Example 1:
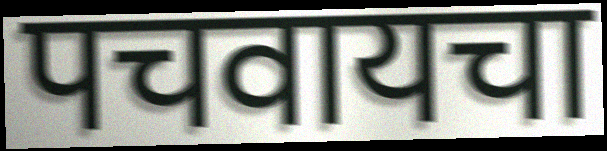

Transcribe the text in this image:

पचवायचा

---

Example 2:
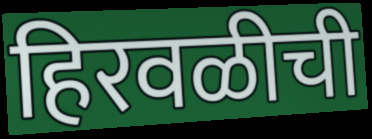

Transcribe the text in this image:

हिरवळीची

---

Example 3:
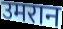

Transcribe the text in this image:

उमरान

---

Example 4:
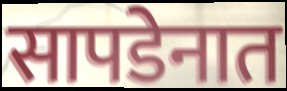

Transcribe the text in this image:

सापडेनात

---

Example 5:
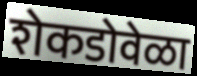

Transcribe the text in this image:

शेकडोवेळा